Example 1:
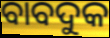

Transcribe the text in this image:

ବାବଦୁକ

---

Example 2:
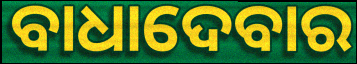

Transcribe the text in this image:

ବାଧାଦେବାର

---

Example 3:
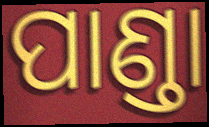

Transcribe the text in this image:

ପାଣ୍ଡା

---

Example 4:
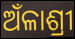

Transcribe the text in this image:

ଅଁଳାଶ୍ରୀ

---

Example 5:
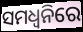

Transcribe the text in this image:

ସମଧ୍ୱନିରେ